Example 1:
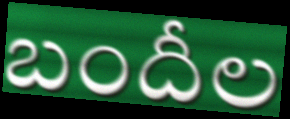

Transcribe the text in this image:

బందీల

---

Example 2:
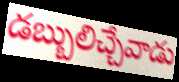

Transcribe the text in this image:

డబ్బులిచ్చేవాడు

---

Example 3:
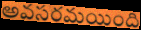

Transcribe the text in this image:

అవసరమయింది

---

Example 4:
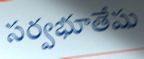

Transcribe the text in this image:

సర్వభూతేషు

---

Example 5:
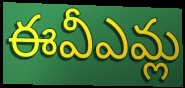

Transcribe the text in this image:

ఈవీఎమ్ల